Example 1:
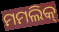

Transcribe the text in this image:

ମମଲିକ୍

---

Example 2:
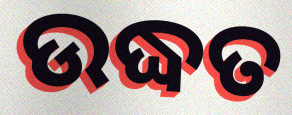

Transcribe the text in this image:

ଉଦ୍ଧତ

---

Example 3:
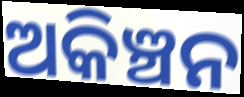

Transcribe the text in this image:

ଅକିଞ୍ଚନ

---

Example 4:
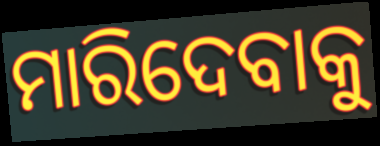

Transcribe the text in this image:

ମାରିଦେବାକୁ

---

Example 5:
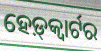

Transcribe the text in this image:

ହେଡ଼୍‌କ୍ୱାର୍ଟର